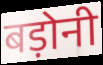
बड़ोनी